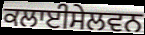
ਕਲਾਈਸੇਲਵਨ